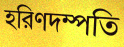
হরিণদম্পতি